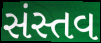
સંસ્તવ